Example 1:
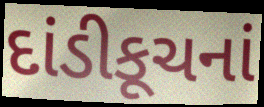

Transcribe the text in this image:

દાંડીકૂચનાં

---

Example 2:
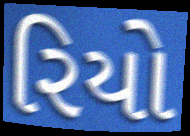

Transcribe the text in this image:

રિયો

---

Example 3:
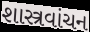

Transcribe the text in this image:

શાસ્ત્રવાંચન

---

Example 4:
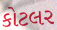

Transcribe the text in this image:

કોટલર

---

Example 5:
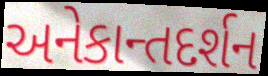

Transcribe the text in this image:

અનેકાન્તદર્શન